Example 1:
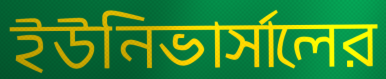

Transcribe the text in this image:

ইউনিভার্সালের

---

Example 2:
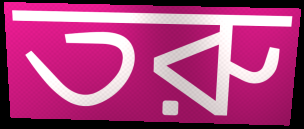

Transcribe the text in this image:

তরু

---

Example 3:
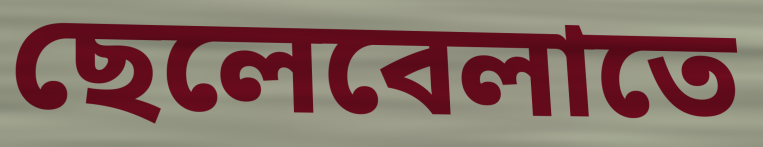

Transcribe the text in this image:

ছেলেবেলাতে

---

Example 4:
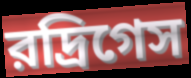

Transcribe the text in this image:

রদ্রিগেস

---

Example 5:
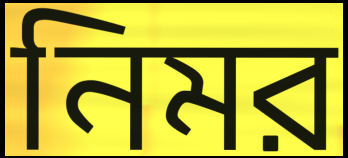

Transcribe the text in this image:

নিমর